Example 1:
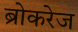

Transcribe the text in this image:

ब्रोकरेज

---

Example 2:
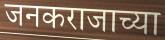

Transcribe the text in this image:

जनकराजाच्या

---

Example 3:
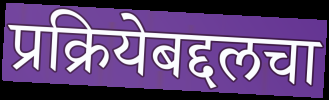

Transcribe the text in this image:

प्रक्रियेबद्दलचा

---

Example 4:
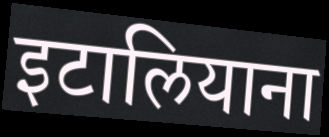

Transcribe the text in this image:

इटालियाना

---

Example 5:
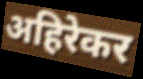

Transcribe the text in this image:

अहिरेकर